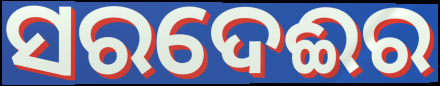
ସରଦେଈର